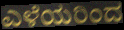
ಎಳೆಯರಿಂದ